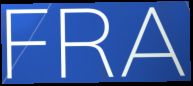
FRA